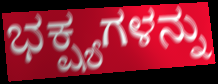
ಭಕ್ಷ್ಯಗಳನ್ನು